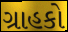
ગ્રાહકો